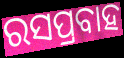
ରସପ୍ରବାହ